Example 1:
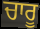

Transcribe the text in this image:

ਚਾਰੂ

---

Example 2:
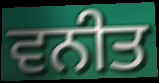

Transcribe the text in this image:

ਵਨੀਤ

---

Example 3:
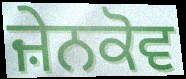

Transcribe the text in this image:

ਜ਼ੇਨਕੋਵ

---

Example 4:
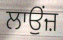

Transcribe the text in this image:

ਲਾਉਂਜ਼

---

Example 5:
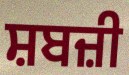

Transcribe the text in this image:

ਸ਼ਬਜ਼ੀ